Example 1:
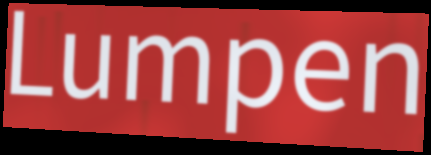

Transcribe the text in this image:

Lumpen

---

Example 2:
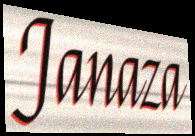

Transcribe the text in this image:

Janaza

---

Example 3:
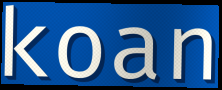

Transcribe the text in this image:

koan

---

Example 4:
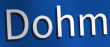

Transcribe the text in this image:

Dohm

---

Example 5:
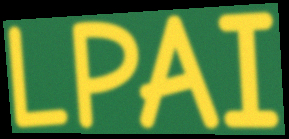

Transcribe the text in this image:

LPAI